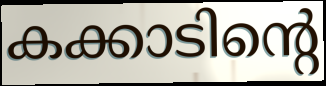
കക്കാടിന്റെ